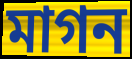
মাগন